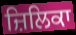
ਜ਼ਿਲਿਕਾ